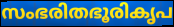
സംഭരിതഭൂരികൃപ